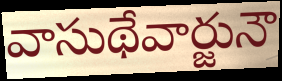
వాసుథేవార్జునౌ